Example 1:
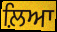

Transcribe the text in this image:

ਲ਼ਿਆ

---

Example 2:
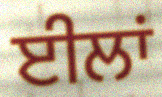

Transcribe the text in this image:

ਈਲਾਂ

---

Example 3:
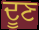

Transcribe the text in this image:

ਦੂਣ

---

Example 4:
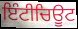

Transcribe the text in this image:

ਇੰਟੀਚਿਊਟ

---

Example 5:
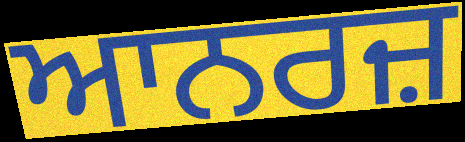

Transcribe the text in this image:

ਆਨਰਜ਼